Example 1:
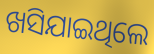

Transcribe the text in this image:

ଖସିଯାଇଥିଲେ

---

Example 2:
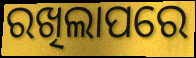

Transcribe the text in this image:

ରଖିଲାପରେ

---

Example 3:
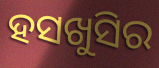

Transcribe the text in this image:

ହସଖୁସିର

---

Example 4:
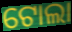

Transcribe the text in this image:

ଟୋଲା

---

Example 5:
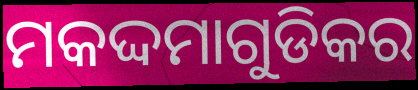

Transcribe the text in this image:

ମକଦ୍ଦମାଗୁଡିକର